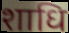
शाधि